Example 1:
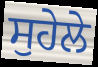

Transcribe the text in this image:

ਸੁਹੇਲੇ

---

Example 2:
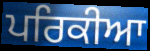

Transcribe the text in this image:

ਪਰਿਕੀਆ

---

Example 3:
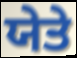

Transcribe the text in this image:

ਯੇਤੇ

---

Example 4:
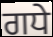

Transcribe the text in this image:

ਗਧੇ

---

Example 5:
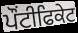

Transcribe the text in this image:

ਪੌਂਟੀਫਿਕੇਟ